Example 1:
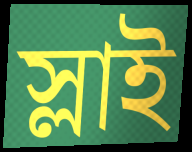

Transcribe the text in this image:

স্লাই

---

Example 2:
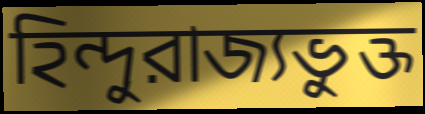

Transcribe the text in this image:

হিন্দুরাজ্যভুক্ত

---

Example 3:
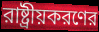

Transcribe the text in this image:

রাষ্ট্রীয়করণের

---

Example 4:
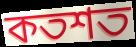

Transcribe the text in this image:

কতশত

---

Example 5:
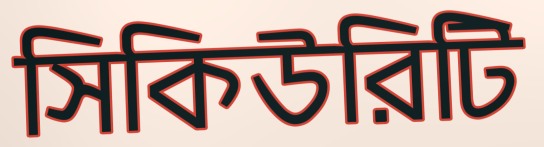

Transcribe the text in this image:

সিকিউরিটি